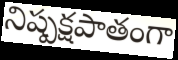
నిష్పక్షపాతంగా